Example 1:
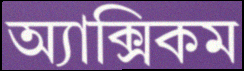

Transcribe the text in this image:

অ্যাক্সিকম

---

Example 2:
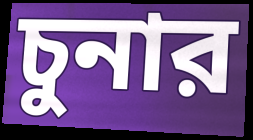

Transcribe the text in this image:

চুনার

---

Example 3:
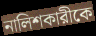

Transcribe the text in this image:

নালিশকারীকে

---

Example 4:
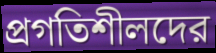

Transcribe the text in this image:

প্রগতিশীলদের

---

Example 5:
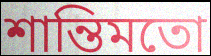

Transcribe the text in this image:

শান্তিমতো